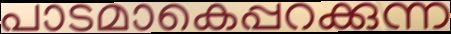
പാടമാകെപ്പറക്കുന്ന